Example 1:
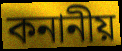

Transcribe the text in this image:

কনানীয়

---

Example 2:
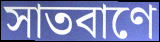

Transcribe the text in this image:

সাতবাণে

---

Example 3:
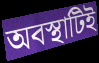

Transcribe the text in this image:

অবস্থাটিই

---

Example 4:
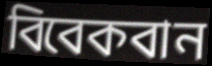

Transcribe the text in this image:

বিবেকবান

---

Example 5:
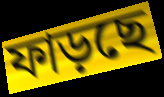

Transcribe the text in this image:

ফাড়ছে